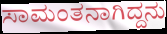
ಸಾಮಂತನಾಗಿದ್ದನು